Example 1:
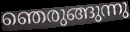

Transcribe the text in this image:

ഞെരുങ്ങുന്നു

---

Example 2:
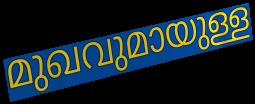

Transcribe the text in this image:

മുഖവുമായുള്ള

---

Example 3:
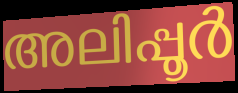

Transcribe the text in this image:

അലിപ്പൂർ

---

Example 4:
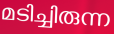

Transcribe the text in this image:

മടിച്ചിരുന്ന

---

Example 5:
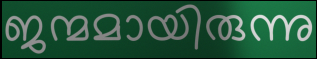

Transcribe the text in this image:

ജന്മമായിരുന്നു